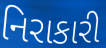
નિરાકારી